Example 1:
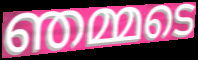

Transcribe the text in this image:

ഞമ്മടെ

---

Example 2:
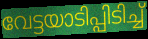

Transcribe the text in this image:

വേട്ടയാടിപ്പിടിച്ച്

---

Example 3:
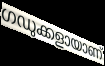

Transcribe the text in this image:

ഗഡുക്കളായാണ്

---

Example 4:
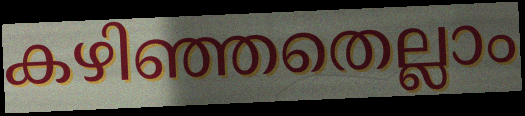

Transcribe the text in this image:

കഴിഞ്ഞതെല്ലാം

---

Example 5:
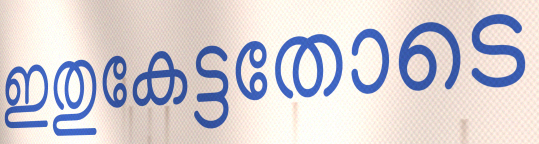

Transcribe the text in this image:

ഇതുകേട്ടതോടെ